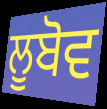
ਲੂਬੋਵ